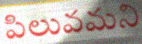
పిలువమని